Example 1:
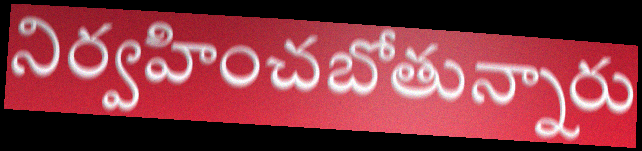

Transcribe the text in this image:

నిర్వహించబోతున్నారు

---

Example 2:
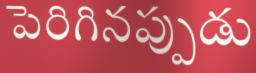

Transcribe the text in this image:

పెరిగినప్పుడు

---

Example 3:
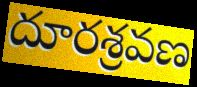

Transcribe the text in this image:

దూరశ్రవణ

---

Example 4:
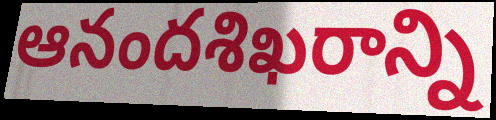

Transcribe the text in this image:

ఆనందశిఖరాన్ని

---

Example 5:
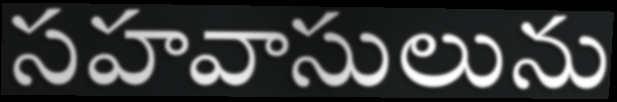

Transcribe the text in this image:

సహవాసులును